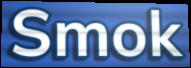
Smok